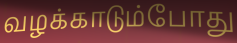
வழக்காடும்போது